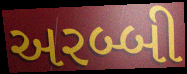
અરબ્બી